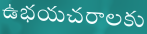
ఉభయచరాలకు